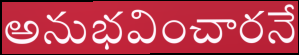
అనుభవించారనే